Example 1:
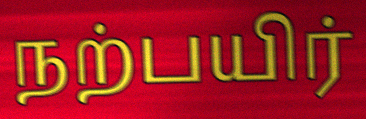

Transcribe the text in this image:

நற்பயிர்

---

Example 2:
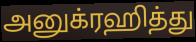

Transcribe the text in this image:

அனுக்ரஹித்து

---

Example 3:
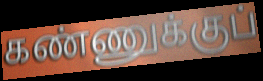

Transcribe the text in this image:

கண்ணுக்குப்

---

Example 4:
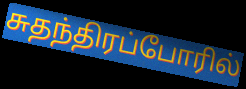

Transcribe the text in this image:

சுதந்திரப்போரில்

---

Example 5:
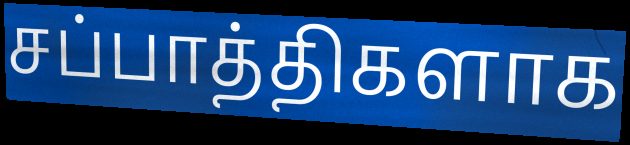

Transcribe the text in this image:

சப்பாத்திகளாக